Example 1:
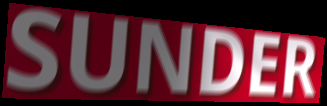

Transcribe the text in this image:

SUNDER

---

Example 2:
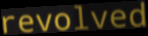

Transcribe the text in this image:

revolved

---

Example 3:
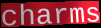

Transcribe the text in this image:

charms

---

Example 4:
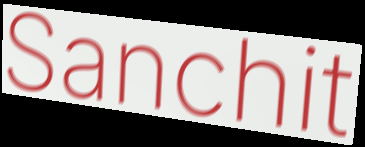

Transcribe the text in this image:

Sanchit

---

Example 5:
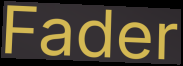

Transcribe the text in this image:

Fader